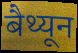
बैथ्यून